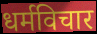
धर्मविचार